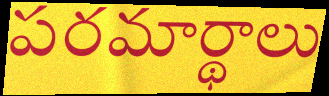
పరమార్థాలు